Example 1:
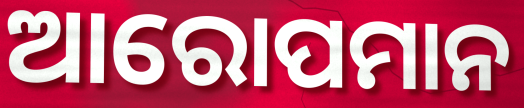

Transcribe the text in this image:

ଆରୋପମାନ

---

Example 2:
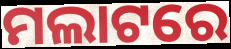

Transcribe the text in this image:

ମଲାଟରେ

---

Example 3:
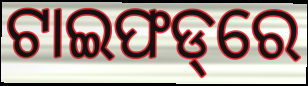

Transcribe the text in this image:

ଟାଇଫଡ୍‌ରେ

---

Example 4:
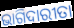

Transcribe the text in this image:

ଭାଗିଦାରୀତା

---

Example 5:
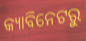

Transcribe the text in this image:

କ୍ୟାବିନେଟରୁ